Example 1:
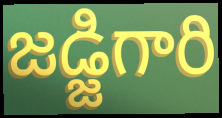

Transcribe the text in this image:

జడ్జిగారి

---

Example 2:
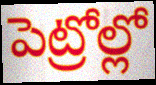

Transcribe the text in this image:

పెట్రోల్లో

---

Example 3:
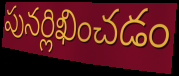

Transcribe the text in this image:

పునర్లిఖించడం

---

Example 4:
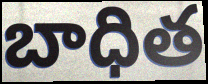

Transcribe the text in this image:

బాధిత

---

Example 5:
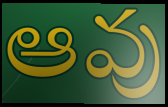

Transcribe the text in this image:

ఆవు